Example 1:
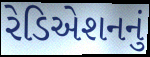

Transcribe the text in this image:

રેડિએશનનું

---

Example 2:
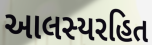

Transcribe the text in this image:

આલસ્યરહિત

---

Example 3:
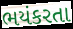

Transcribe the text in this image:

ભયંકરતા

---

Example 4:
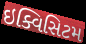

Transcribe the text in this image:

ઇક્વિસિટમ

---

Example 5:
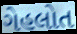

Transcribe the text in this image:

ગેહલોત